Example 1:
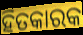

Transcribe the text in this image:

ହିତକାରକ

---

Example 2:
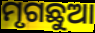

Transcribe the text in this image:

ମୃଗଛୁଆ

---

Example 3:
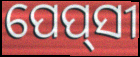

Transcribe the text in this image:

ପେପ୍‌ସୀ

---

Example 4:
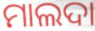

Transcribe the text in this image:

ମାଲଦା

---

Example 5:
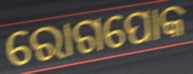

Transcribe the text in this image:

ରୋଗପୋକ